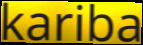
kariba